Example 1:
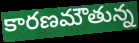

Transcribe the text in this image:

కారణమౌతున్న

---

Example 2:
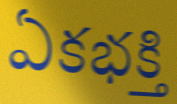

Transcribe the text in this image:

ఏకభక్తి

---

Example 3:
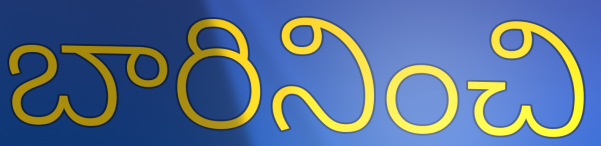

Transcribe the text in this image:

బారినించి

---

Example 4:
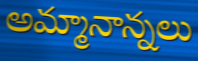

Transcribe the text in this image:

అమ్మానాన్నలు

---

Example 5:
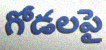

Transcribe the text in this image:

గోడలపై